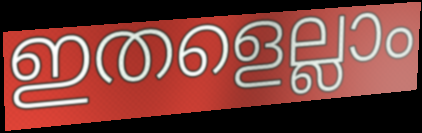
ഇതളെല്ലാം